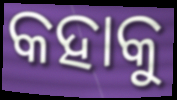
କହାକୁ